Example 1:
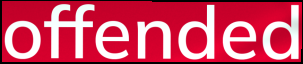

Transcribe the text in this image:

offended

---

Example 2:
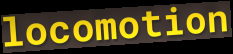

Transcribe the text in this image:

locomotion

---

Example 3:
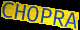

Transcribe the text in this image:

CHOPRA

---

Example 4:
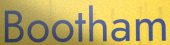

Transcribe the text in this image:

Bootham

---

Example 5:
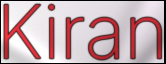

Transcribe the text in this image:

Kiran